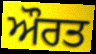
ਔਰਤ